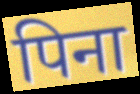
पिना